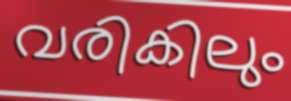
വരികിലും